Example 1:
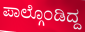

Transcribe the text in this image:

ಪಾಲ್ಗೊಂಡಿದ್ದ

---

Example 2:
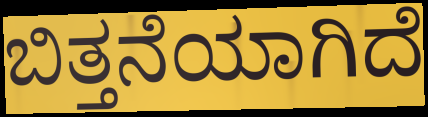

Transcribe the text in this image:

ಬಿತ್ತನೆಯಾಗಿದೆ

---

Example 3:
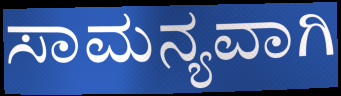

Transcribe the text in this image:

ಸಾಮನ್ಯವಾಗಿ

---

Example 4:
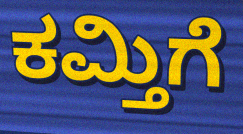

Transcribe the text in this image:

ಕಮ್ತಿಗೆ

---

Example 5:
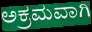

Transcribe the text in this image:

ಅಕ್ರಮವಾಗಿ